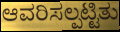
ಆವರಿಸಲ್ಪಟ್ಟಿತು